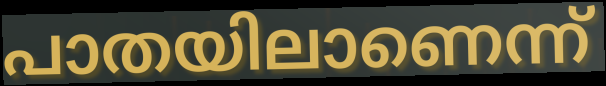
പാതയിലാണെന്ന്